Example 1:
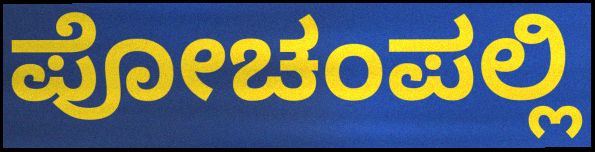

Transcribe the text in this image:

ಪೋಚಂಪಲ್ಲಿ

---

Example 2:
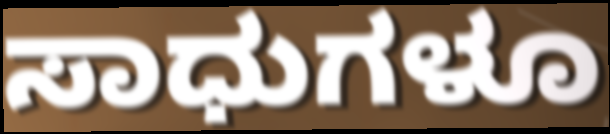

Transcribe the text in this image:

ಸಾಧುಗಳೂ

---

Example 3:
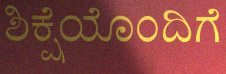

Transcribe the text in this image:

ಶಿಕ್ಷೆಯೊಂದಿಗೆ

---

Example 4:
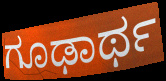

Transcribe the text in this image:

ಗೂಢಾರ್ಥ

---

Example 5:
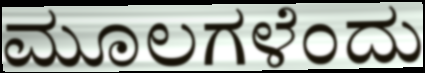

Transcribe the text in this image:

ಮೂಲಗಳೆಂದು